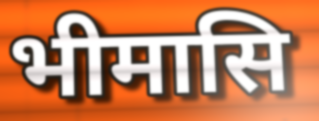
भीमासि